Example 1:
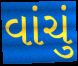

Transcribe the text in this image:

વાંચું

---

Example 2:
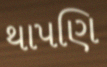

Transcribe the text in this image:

થાપણિ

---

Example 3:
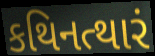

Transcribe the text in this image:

કથિનત્થારં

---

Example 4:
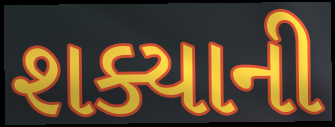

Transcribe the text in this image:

શક્યાની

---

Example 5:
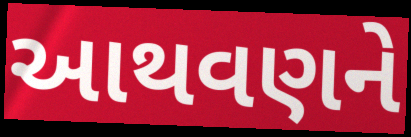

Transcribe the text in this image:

આથવણને